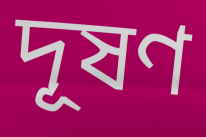
দূষণ